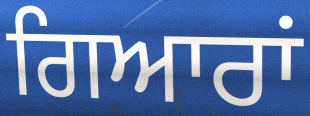
ਗਿਆਰਾਂ